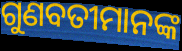
ଗୁଣବତୀମାନଙ୍କ